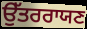
ਉੱਤਰਰਾਯਣ